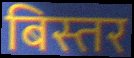
बिस्तर